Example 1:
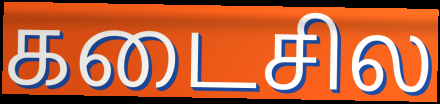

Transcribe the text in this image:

கடைசில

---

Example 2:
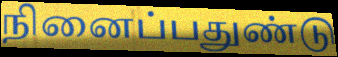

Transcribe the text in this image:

நினைப்பதுண்டு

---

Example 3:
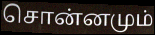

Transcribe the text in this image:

சொன்னமும்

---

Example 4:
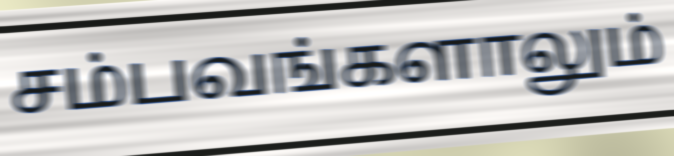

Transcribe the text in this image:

சம்பவங்களாலும்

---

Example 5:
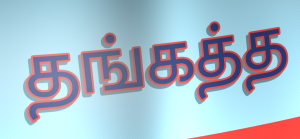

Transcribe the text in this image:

தங்கத்த